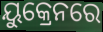
ୟୁକ୍ରେନରେ